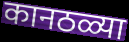
कानठळ्या